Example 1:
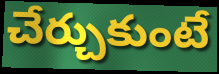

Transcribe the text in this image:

చేర్చుకుంటే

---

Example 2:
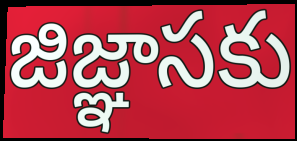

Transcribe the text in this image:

జిజ్ఞాసకు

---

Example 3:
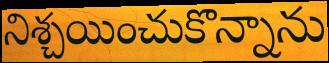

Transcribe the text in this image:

నిశ్చయించుకొన్నాను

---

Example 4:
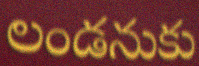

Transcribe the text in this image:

లండనుకు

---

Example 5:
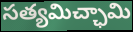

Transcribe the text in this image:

సత్యమిచ్ఛామి